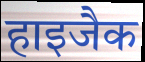
हाइजैक